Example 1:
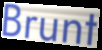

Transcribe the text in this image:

Brunt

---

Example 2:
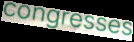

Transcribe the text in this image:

congresses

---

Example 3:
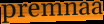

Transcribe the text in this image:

premnaa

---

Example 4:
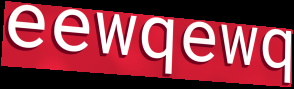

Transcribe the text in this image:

eewqewq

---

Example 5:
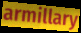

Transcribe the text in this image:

armillary